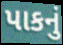
પાકનું